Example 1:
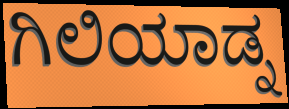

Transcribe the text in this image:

ಗಿಲಿಯಾಡ್ನ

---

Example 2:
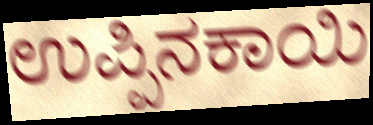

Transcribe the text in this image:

ಉಪ್ಪಿನಕಾಯಿ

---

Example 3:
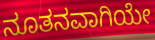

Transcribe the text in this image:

ನೂತನವಾಗಿಯೇ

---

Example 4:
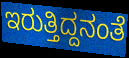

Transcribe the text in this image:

ಇರುತ್ತಿದ್ದನಂತೆ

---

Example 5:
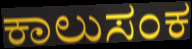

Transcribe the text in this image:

ಕಾಲುಸಂಕ